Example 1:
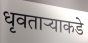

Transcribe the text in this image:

धृवतार्‍याकडे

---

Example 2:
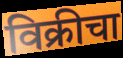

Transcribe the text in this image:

विक्रीचा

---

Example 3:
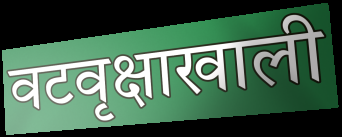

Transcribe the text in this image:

वटवृक्षाखाली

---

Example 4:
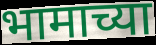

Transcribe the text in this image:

भामाच्या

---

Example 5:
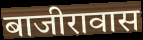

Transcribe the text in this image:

बाजीरावास